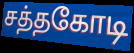
சத்தகோடி